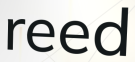
reed